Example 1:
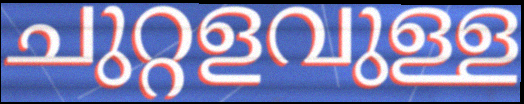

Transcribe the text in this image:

ചുറ്റളവുള്ള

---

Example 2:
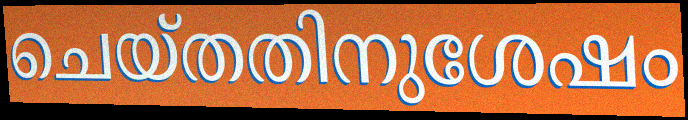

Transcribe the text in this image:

ചെയ്തതിനുശേഷം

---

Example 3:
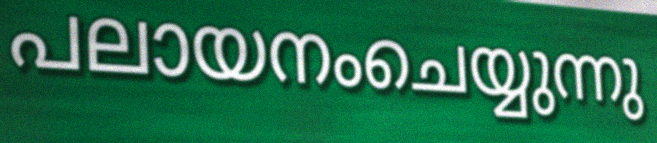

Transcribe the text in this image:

പലായനംചെയ്യുന്നു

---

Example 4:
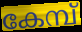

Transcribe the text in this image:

കേമ്പ്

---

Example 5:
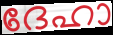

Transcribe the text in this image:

ദേഹാ